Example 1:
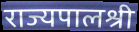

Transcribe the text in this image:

राज्यपालश्री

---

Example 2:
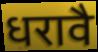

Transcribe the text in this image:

धरावै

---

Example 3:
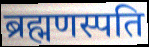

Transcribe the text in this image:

ब्रह्मणस्पति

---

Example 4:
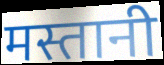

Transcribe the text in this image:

मस्‍तानी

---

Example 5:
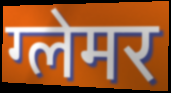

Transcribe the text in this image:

ग्लेमर